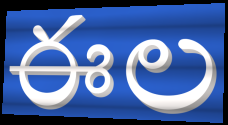
ఈల